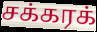
சக்கரக்